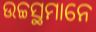
ଉଚ୍ଚସ୍ଥମାନେ